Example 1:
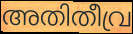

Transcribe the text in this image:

അതിതീവ്ര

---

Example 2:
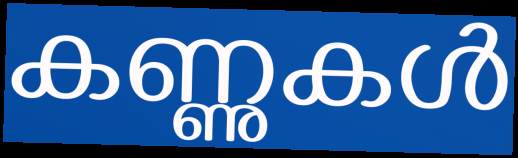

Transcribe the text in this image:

കണ്ണുകൾ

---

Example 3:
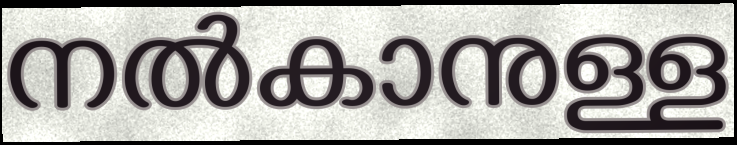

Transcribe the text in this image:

നൽകാനുള്ള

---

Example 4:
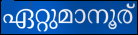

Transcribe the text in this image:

ഏറ്റുമാനൂര്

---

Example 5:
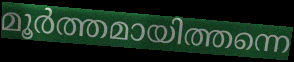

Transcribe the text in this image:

മൂർത്തമായിത്തന്നെ